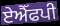
ਏਐੱਫਪੀ